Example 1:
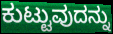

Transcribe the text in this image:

ಕುಟ್ಟುವುದನ್ನು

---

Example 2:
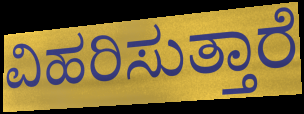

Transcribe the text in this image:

ವಿಹರಿಸುತ್ತಾರೆ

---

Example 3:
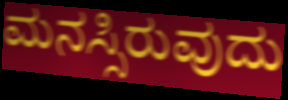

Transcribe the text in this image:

ಮನಸ್ಸಿರುವುದು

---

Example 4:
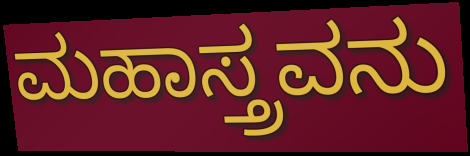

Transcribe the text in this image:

ಮಹಾಸ್ತ್ರವನು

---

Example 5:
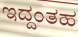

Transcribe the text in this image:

ಇದ್ದಂತಹ